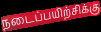
நடைப்பயிற்சிக்கு